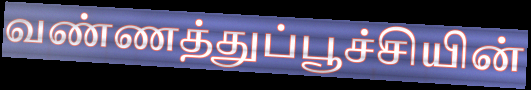
வண்ணத்துப்பூச்சியின்